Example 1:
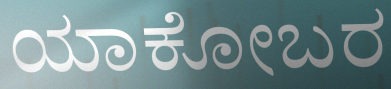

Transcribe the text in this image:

ಯಾಕೋಬರ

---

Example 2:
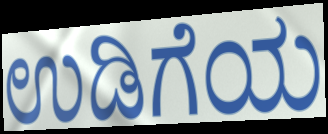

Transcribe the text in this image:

ಉಡಿಗೆಯ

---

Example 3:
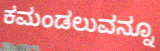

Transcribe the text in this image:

ಕಮಂಡಲುವನ್ನೂ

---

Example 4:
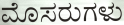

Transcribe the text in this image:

ಮೊಸರುಗಳು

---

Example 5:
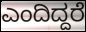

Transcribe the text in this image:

ಎಂದಿದ್ದರೆ